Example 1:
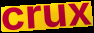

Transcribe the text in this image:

crux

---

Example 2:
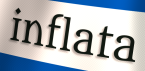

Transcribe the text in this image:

inflata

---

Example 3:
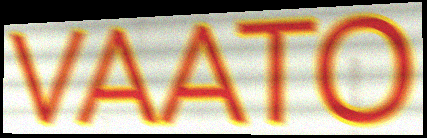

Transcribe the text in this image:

VAATO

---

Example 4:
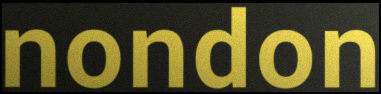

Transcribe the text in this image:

nondon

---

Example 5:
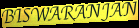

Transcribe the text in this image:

BISWARANJAN